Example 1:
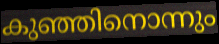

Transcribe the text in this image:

കുഞ്ഞിനൊന്നും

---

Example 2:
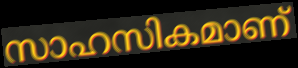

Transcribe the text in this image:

സാഹസികമാണ്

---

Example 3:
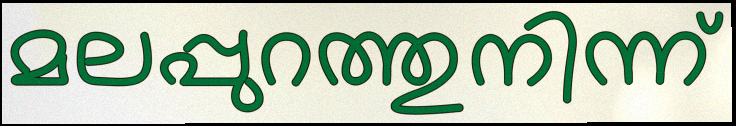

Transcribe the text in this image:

മലപ്പുറത്തുനിന്ന്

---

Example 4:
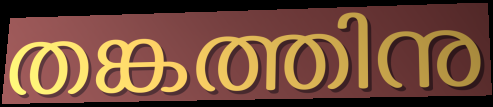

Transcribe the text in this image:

തങ്കത്തിനു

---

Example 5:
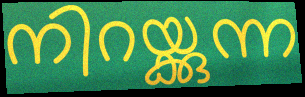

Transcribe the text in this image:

നിറയ്ക്കുന്ന